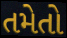
તમેતો